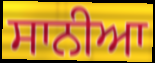
ਸਾਨੀਆ